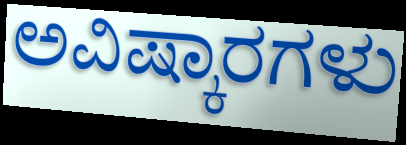
ಅವಿಷ್ಕಾರಗಳು